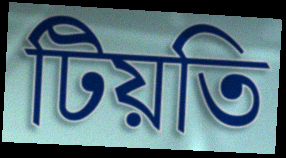
টিয়তি